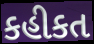
કહીકત